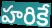
హరికే